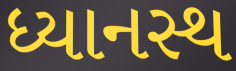
ધ્યાનસ્થ